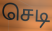
செடி